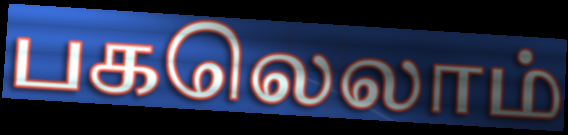
பகலெலாம்